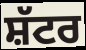
ਸ਼ੱਟਰ